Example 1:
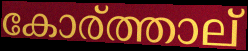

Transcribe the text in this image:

കോര്ത്താല്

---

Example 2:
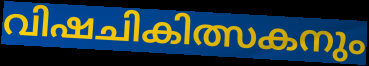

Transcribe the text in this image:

വിഷചികിത്സകനും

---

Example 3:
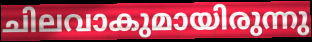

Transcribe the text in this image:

ചിലവാകുമായിരുന്നു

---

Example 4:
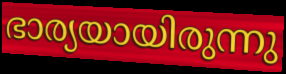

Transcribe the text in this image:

ഭാര്യയായിരുന്നു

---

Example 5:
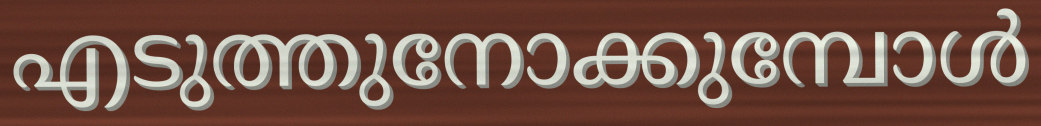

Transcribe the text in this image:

എടുത്തുനോക്കുമ്പോൾ